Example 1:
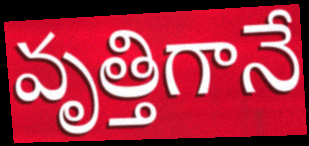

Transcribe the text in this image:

వృత్తిగానే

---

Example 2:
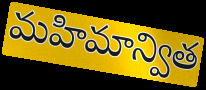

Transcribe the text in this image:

మహిమాన్విత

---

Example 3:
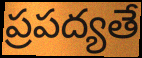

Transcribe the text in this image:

ప్రపద్యతే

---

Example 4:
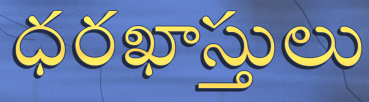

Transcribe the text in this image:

ధరఖాస్తులు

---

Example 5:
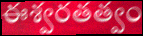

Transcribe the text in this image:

ఈశ్వరతత్వం